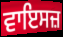
ਵਾਇਸਜ਼